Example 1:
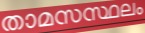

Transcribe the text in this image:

താമസസ്ഥലം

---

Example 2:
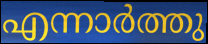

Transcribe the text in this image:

എന്നാർത്തു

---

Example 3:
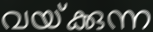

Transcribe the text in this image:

വയ്‌ക്കുന്ന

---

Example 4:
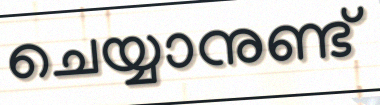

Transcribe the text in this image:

ചെയ്യാനുണ്ട്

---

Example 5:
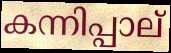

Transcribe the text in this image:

കന്നിപ്പാല്